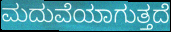
ಮದುವೆಯಾಗುತ್ತದೆ